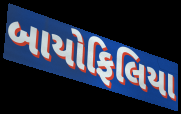
બાયોફિલિયા